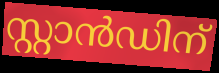
സ്റ്റാൻഡിന്